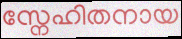
സ്നേഹിതനായ